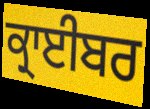
ਕ੍ਰਾਈਬਰ